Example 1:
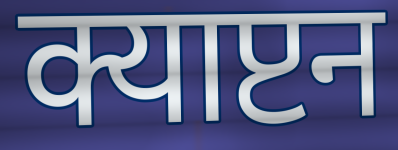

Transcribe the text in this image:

क्याप्टन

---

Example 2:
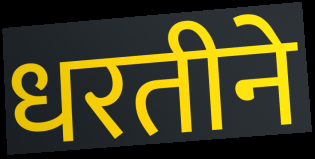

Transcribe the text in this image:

धरतीने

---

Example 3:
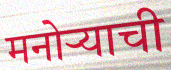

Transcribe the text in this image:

मनोऱ्याची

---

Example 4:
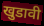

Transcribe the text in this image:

खुडावी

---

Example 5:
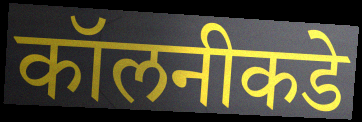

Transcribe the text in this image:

कॉलनीकडे